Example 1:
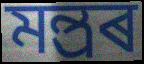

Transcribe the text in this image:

মন্ত্ৰৰ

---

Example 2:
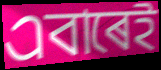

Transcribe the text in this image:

এবাৰেই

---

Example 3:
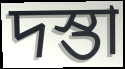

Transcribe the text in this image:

দস্তা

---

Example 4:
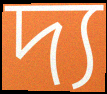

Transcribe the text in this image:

দ্য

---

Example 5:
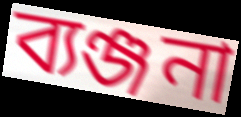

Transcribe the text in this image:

ব্যঞ্জনা